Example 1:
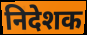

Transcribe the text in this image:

निदेशक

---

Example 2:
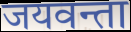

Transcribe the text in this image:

जयवन्ता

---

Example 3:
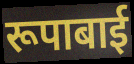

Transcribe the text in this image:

रूपाबाई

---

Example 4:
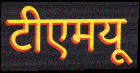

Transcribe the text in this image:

टीएमयू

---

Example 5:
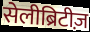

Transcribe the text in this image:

सेलीब्रिटीज़